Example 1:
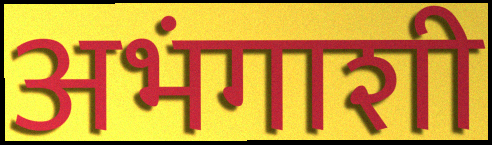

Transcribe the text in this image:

अभंगाशी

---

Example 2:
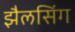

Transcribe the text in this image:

झैलसिंग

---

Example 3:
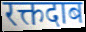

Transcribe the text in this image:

रक्तदाब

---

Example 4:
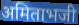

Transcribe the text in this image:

अमिताभजी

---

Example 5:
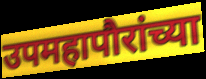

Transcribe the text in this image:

उपमहापौरांच्या